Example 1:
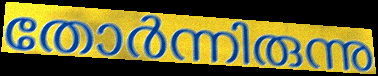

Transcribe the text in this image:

തോർന്നിരുന്നു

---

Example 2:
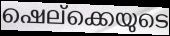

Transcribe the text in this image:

ഷെല്ക്കെയുടെ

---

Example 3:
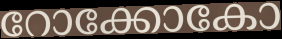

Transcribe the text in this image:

റോക്കോകോ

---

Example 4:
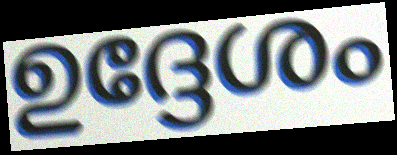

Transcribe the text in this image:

ഉദ്ദേശം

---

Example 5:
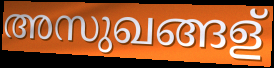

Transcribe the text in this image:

അസുഖങ്ങള്